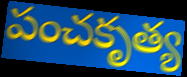
పంచకృత్య